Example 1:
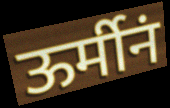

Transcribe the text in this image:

ऊर्मीनं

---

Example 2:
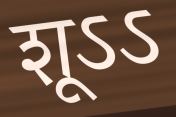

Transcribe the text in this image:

शूऽऽ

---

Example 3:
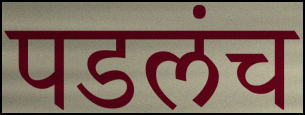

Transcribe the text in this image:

पडलंच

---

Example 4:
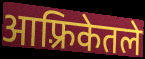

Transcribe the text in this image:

आफ़्रिकेतले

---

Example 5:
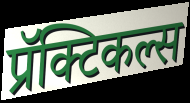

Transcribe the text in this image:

प्रॅक्टिकल्स